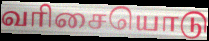
வரிசையொடு